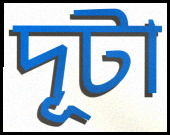
দূটা